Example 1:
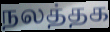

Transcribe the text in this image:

நலத்தக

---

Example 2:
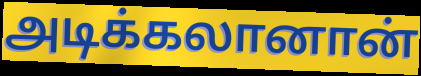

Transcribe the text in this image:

அடிக்கலானான்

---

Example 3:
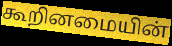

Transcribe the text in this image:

கூறினமையின்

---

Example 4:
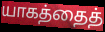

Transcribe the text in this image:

யாகத்தைத்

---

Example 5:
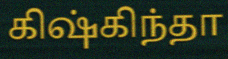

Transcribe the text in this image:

கிஷ்கிந்தா